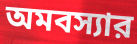
অমবস্যার